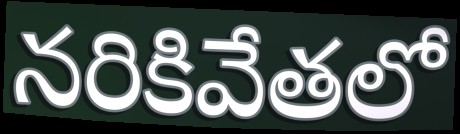
నరికివేతలో